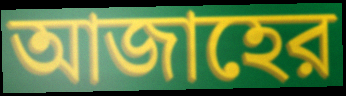
আজাহের